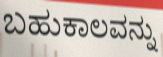
ಬಹುಕಾಲವನ್ನು